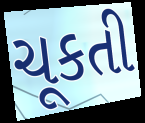
ચૂકતી